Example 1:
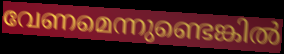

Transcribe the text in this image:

വേണമെന്നുണ്ടെങ്കിൽ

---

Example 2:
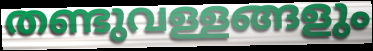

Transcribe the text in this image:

തണ്ടുവള്ളങ്ങളും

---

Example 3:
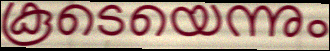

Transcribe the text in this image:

കൂടെയെന്നും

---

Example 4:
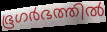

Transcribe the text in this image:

ഭൂഗർഭത്തിൽ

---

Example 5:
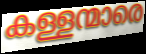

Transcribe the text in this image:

കള്ളന്മാരെ